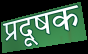
प्रदूषक